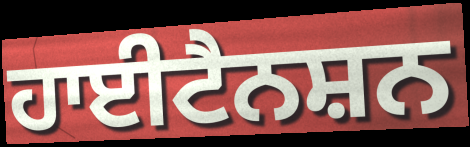
ਹਾਈਟੈਨਸ਼ਨ